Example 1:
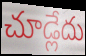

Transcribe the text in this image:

చూడ్లేదు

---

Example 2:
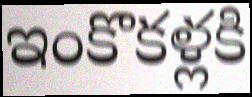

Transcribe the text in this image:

ఇంకొకళ్లకి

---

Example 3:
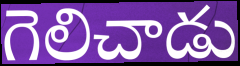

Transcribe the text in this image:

గెలిచాడు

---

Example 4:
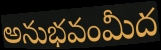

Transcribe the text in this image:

అనుభవంమీద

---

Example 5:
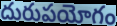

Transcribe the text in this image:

దురుపయోగం